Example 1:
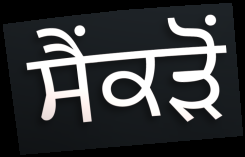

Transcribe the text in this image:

ਸੈਂਕੜੋਂ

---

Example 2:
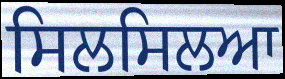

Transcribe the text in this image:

ਸਿਲਸਿਲਆ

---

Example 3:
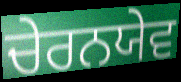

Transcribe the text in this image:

ਚੇਰਨਯੇਵ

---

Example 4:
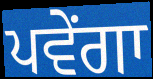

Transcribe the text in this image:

ਪਵੇਂਗਾ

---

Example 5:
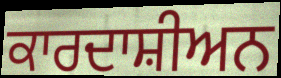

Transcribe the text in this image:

ਕਾਰਦਾਸ਼ੀਅਨ